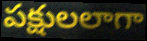
పక్షులలాగా